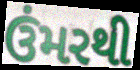
ઉંમરથી